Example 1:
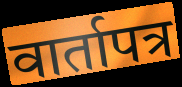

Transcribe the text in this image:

वार्तापत्र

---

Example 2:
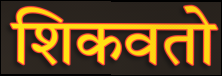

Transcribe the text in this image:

शिकवतो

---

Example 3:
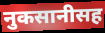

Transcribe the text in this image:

नुकसानीसह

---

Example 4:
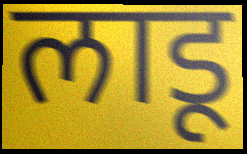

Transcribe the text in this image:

लाडू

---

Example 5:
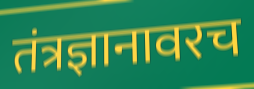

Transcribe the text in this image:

तंत्रज्ञानावरच